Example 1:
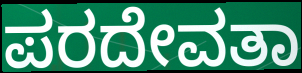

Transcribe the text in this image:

ಪರದೇವತಾ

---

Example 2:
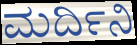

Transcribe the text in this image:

ಮರ್ದಿನಿ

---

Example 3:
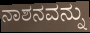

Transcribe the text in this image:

ನಾಶನವನ್ನು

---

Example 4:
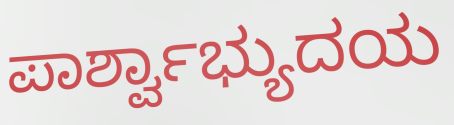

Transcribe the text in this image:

ಪಾರ್ಶ್ವಾಭ್ಯುದಯ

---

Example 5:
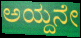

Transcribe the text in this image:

ಅಯ್ದನೇ